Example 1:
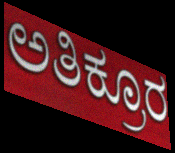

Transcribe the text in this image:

ಅತಿಕ್ರೂರ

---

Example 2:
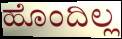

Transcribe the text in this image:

ಹೊಂದಿಲ್ಲ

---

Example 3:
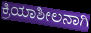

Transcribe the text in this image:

ಕ್ರಿಯಾಶೀಲನಾಗಿ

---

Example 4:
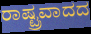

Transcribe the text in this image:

ರಾಷ್ಟ್ರವಾದದ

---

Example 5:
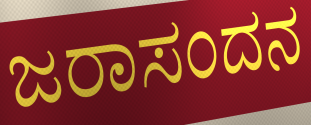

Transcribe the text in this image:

ಜರಾಸಂದನ